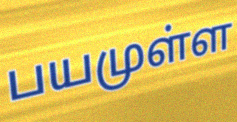
பயமுள்ள